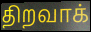
திறவாக்